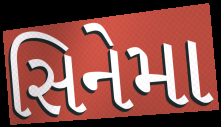
સિનેમા